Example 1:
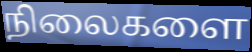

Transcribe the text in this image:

நிலைகளை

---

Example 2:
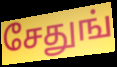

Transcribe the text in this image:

சேதுங்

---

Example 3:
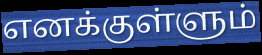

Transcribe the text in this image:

எனக்குள்ளும்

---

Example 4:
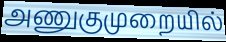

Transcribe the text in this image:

அணுகுமுறையில்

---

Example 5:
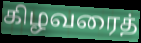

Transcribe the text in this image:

கிழவரைத்